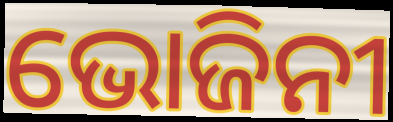
ଭୋଜିନୀ